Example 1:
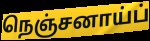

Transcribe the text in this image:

நெஞ்சனாய்ப்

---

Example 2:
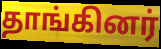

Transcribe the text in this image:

தாங்கினர்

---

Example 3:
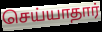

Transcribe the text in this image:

செய்யாதார்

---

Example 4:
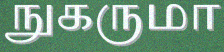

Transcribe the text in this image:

நுகருமா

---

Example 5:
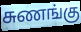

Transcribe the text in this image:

சுணங்கு